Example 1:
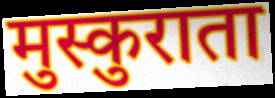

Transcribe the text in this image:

मुस्कुराता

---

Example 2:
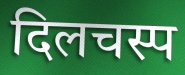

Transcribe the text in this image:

दिलचस्प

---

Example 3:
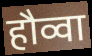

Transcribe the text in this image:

हौव्वा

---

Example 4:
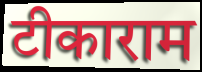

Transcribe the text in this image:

टीकाराम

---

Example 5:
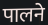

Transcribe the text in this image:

पालने